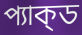
প্যাক্‌ড